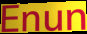
Enun